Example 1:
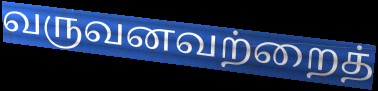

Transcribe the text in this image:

வருவனவற்றைத்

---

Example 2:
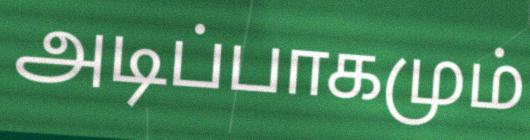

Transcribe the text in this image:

அடிப்பாகமும்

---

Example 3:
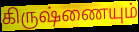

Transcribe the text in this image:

கிருஷ்ணையும்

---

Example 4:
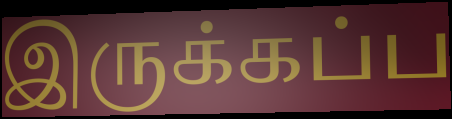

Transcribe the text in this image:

இருக்கப்ப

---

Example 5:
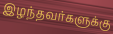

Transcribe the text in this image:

இழந்தவர்களுக்கு